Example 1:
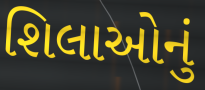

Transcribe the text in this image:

શિલાઓનું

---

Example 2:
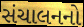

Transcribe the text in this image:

સંચાલનનો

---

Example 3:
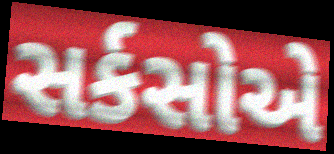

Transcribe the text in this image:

સર્કસોએ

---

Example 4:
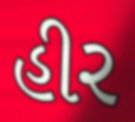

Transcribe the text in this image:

હીર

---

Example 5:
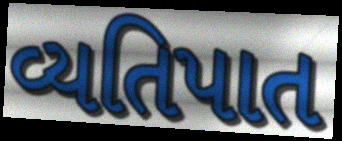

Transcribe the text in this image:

વ્યતિપાત